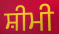
ਸ਼ੀਮੀ